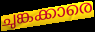
ചുങ്കക്കാരെ